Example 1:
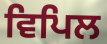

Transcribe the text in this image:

ਵਿਪਿਲ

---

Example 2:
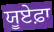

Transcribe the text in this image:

ਯੂਏਫ਼ਾ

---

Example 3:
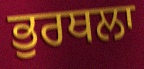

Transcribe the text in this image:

ਭੁਰਥਲਾ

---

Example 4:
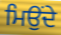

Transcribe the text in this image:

ਮਿਉਂਦੇ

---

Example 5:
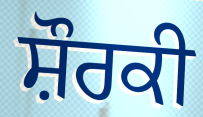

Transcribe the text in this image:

ਸ਼ੌਰਕੀ